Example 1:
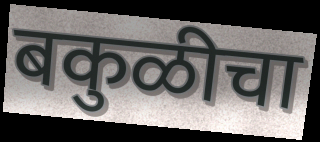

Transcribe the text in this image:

बकुळीचा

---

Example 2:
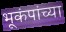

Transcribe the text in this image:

भूकंपांच्या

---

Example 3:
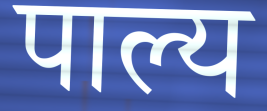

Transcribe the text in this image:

पाल्य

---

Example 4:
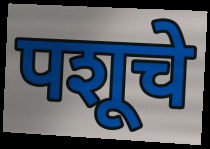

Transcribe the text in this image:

पशूचे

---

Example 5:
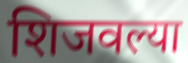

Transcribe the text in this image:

शिजवल्या